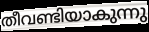
തീവണ്ടിയാകുന്നു